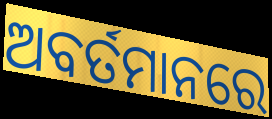
ଅବର୍ତମାନରେ